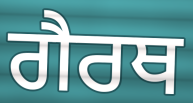
ਗੈਰਥ